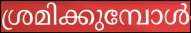
ശ്രമിക്കുമ്പോൾ